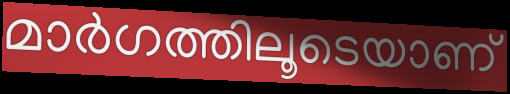
മാർഗത്തിലൂടെയാണ്